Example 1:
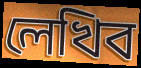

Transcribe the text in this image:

লেখিব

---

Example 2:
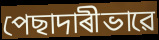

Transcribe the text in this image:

পেছাদাৰীভাৱে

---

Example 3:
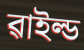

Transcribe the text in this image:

ৱাইল্ড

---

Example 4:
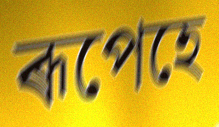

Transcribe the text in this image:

ৰূপেহে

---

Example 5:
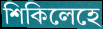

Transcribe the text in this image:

শিকিলেহে